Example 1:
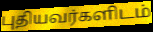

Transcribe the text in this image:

புதியவர்களிடம்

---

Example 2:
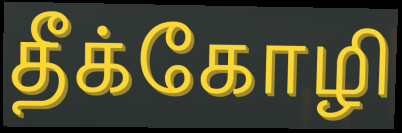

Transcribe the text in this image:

தீக்கோழி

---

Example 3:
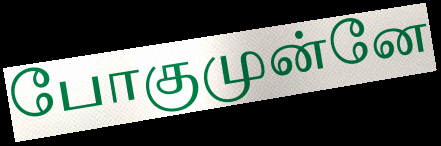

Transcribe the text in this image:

போகுமுன்னே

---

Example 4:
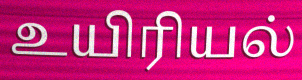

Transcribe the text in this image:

உயிரியல்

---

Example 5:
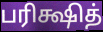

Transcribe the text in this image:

பரிக்ஷித்